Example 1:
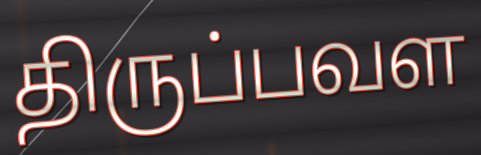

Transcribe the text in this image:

திருப்பவள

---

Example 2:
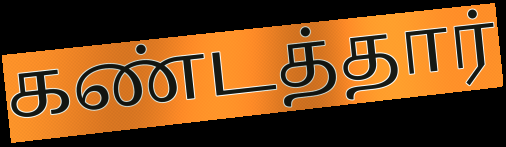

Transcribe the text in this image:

கண்டத்தார்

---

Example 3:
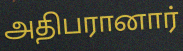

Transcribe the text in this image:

அதிபரானார்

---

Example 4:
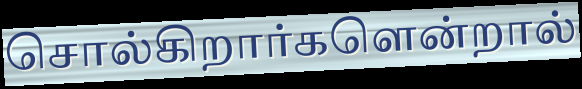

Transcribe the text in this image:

சொல்கிறார்களென்றால்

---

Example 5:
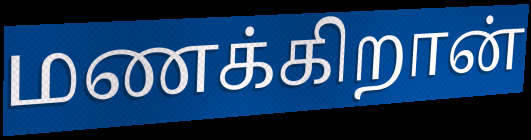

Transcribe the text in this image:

மணக்கிறான்